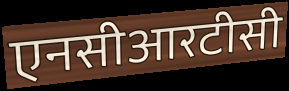
एनसीआरटीसी